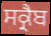
ਸਕ੍ਰੈਬ